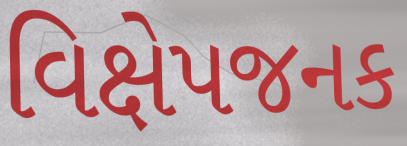
વિક્ષેપજનક